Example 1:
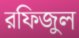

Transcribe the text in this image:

রফিজুল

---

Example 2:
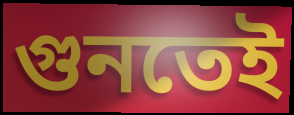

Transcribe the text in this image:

গুনতেই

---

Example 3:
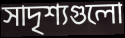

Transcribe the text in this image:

সাদৃশ্যগুলো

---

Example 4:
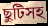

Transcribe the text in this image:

ছুটিসহ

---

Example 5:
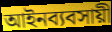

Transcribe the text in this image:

আইনব্যবসায়ী